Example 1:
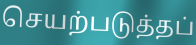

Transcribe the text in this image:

செயற்படுத்தப்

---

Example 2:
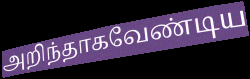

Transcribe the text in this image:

அறிந்தாகவேண்டிய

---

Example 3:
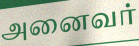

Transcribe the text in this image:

அனைவர்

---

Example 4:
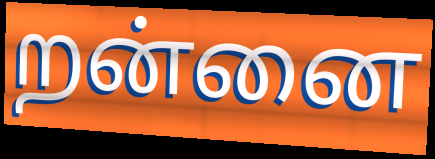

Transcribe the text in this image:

றன்னை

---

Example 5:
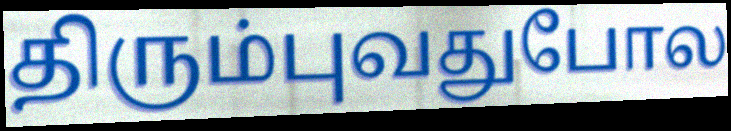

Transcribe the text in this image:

திரும்புவதுபோல